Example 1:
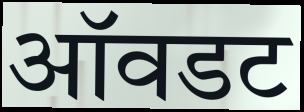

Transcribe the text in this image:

ऑवडट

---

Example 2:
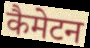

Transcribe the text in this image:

कैमेटन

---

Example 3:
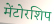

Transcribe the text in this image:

मेंटोरशिप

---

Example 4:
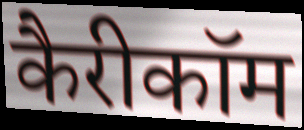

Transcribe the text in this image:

कैरीकॉम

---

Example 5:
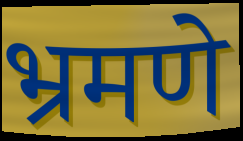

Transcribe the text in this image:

भ्रमणे